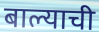
बाल्याची